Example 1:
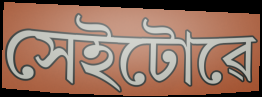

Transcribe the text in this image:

সেইটোৱে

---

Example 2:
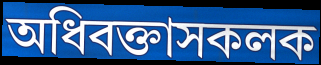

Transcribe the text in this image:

অধিবক্তাসকলক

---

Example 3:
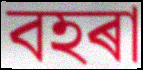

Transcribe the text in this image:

বহৰা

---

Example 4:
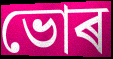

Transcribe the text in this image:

ভোৰ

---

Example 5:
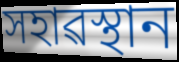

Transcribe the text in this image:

সহাৱস্থান